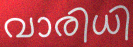
വാരിധി